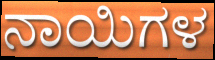
ನಾಯಿಗಳ